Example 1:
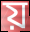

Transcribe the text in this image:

য়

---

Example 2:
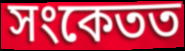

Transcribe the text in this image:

সংকেতত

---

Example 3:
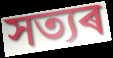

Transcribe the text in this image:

সত্যৰ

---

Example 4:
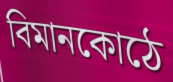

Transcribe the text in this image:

বিমানকোঠে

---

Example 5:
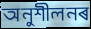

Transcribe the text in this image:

অনুশীলনৰ